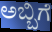
ಅಬ್ಬಿಗೆ